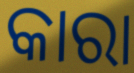
କାରା